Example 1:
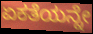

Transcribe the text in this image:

ಏಕತೆಯನ್ನೇ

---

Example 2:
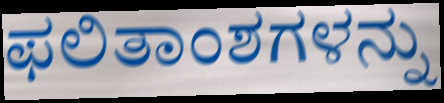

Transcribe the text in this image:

ಫಲಿತಾಂಶಗಳನ್ನು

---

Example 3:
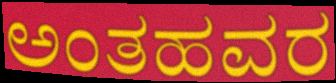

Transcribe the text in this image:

ಅಂತಹವರ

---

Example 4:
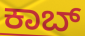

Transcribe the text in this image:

ಕಾಬ್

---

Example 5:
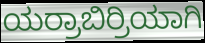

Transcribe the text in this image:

ಯರ್ರಾಬಿರ್ರಿಯಾಗಿ